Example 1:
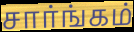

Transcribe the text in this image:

சார்ங்கம்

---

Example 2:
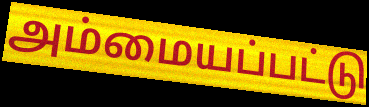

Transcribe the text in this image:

அம்மையப்பட்டு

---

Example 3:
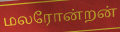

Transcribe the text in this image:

மலரோன்றன்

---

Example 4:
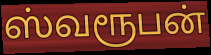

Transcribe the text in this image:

ஸ்வரூபன்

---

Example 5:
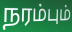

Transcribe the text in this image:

நரம்பும்